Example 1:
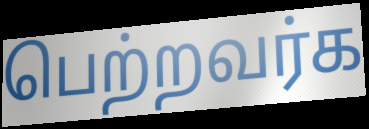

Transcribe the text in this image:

பெற்றவர்க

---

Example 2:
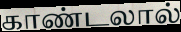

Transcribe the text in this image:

காண்டலால்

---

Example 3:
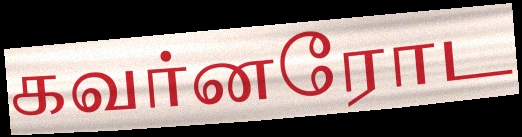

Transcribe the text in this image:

கவர்னரோட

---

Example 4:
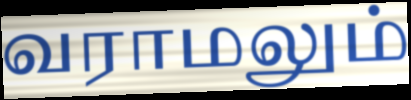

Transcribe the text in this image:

வராமலும்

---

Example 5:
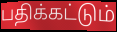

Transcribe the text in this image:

பதிக்கட்டும்